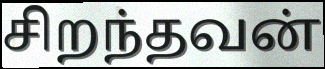
சிறந்தவன்